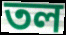
তল